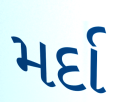
મર્દા